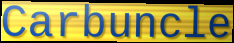
Carbuncle